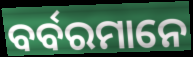
ବର୍ବରମାନେ